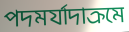
পদমর্যাদাক্রমে